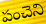
పంచెని